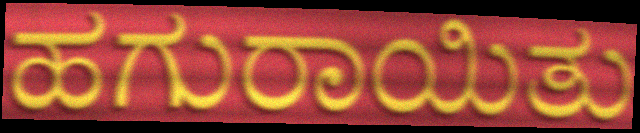
ಹಗುರಾಯಿತು